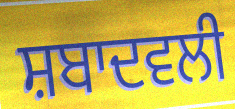
ਸ਼ਬਾਦਵਲੀ